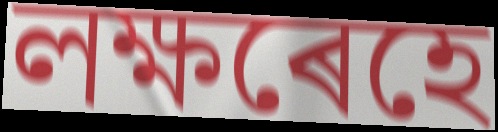
লক্ষৰেহে